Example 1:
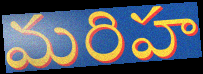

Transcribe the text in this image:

మరిహ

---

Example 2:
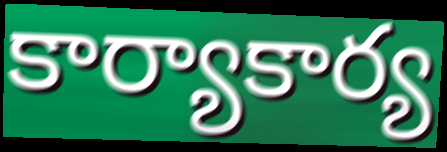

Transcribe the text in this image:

కార్యాకార్య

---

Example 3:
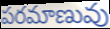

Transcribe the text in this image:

పరమాణువు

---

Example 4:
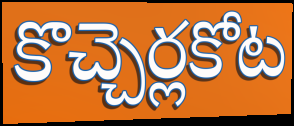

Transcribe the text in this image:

కొచ్చెర్లకోట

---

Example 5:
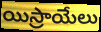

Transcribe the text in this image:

యిస్రాయేలు